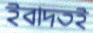
ইবাদতই